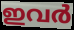
ഇവർ